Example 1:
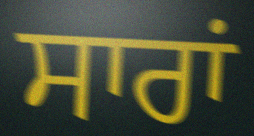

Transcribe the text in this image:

ਸਾਰਾਂ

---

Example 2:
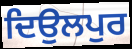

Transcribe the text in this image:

ਦਿਉਲਪੁਰ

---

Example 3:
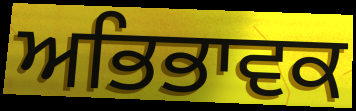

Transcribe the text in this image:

ਅਭਿਭਾਵਕ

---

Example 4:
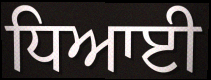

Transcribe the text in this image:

ਧਿਆਈ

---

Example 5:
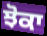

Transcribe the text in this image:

ਝੋਕਾ